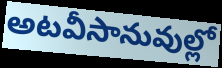
అటవీసానువుల్లో